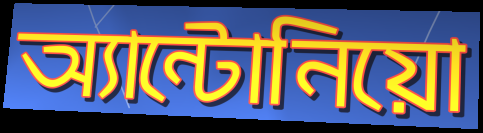
অ্যান্টোনিয়ো